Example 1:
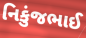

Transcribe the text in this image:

નિકુંજભાઈ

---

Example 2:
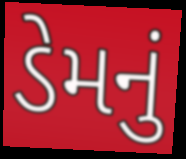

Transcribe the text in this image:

ડેમનું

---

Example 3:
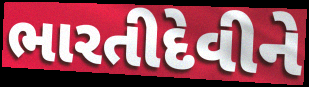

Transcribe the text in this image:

ભારતીદેવીને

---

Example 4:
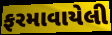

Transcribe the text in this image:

ફરમાવાયેલી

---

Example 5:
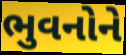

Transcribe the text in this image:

ભુવનોને